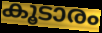
കൂടാരം